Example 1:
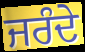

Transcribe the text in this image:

ਜਰੰਦੇ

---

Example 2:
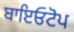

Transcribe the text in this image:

ਬਾਇਓਟੋਪ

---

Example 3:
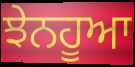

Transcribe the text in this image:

ਝੇਨਹੂਆ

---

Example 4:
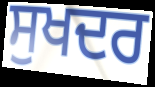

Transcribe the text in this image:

ਸੁਖਦਰ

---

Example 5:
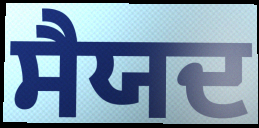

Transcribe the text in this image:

ਸੈਯਦ